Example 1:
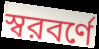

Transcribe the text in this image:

স্বরবর্ণে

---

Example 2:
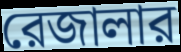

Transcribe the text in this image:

রেজালার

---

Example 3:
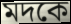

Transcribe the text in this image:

মদকে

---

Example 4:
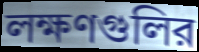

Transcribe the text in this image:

লক্ষণগুলির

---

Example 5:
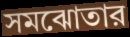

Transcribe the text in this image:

সমঝোতার